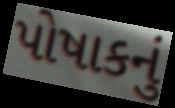
પોષાકનું